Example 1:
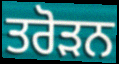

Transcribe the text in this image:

ਤਰੋੜਨ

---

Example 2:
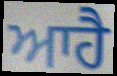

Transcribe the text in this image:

ਆਹੈ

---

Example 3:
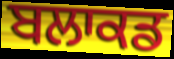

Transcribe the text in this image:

ਬਲਾਕਡ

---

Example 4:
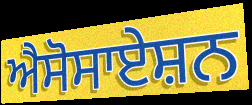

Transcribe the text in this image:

ਐਸੋਸਾਏਸ਼ਨ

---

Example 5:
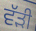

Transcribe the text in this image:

ਵੱੜੀ